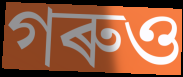
গৰুও